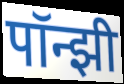
पॉन्झी